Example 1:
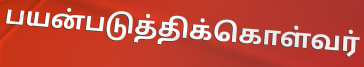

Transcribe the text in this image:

பயன்படுத்திக்கொள்வர்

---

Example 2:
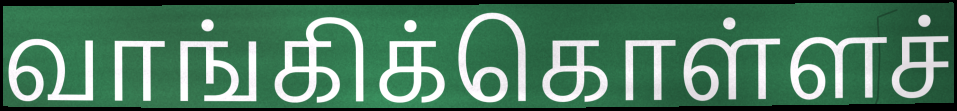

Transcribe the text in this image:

வாங்கிக்கொள்ளச்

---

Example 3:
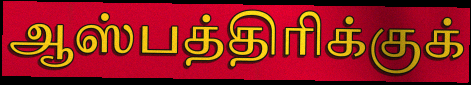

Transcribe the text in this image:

ஆஸ்பத்திரிக்குக்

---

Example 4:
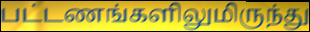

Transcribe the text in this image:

பட்டணங்களிலுமிருந்து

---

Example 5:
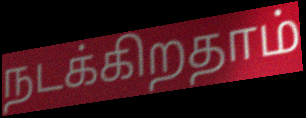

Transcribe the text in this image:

நடக்கிறதாம்